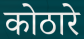
कोठारे